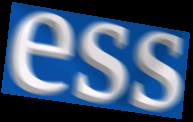
ess